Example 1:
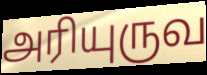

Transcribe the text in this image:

அரியுருவ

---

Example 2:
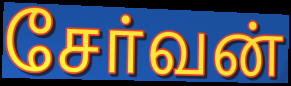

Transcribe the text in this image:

சேர்வன்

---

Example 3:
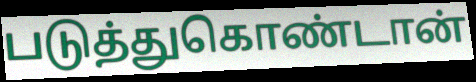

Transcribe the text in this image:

படுத்துகொண்டான்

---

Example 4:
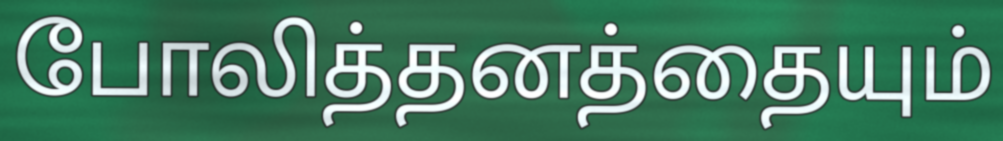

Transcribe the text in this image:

போலித்தனத்தையும்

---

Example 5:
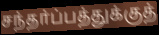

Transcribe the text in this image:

சந்தர்ப்பத்துக்குத்